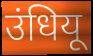
उंधियू